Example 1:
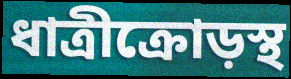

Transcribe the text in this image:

ধাত্রীক্রোড়স্থ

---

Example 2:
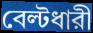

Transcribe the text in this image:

বেল্টধারী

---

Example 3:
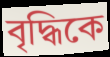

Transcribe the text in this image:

বৃদ্ধিকে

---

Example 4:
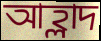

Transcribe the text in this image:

আহ্লাদ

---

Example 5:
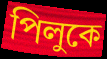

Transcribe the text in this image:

পিলুকে